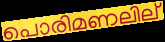
പൊരിമണലില്